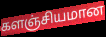
களஞ்சியமான